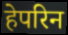
हेपरिन